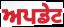
ਅਪਡੇਟ